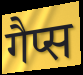
गैप्स